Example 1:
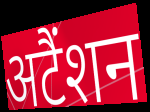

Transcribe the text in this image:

अटैंशन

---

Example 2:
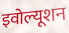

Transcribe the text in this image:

इवोल्यूशन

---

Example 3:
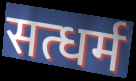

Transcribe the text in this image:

सत्धर्म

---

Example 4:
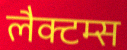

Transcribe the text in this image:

लैक्टम्स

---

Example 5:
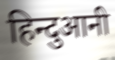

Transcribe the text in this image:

हिन्दुआनी